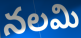
నలమి